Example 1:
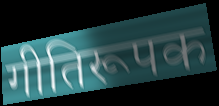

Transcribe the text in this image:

गीतिरूपक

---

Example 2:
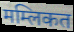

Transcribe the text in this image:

मम्लिकत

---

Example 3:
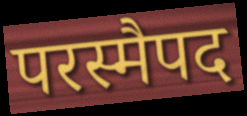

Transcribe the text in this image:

परस्मैपद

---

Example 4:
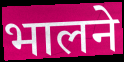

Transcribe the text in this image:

भालने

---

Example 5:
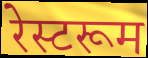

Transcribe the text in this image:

रेस्टरूम